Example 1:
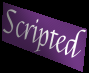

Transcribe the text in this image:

Scripted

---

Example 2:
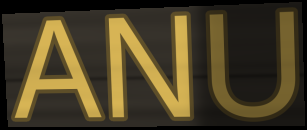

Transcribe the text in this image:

ANU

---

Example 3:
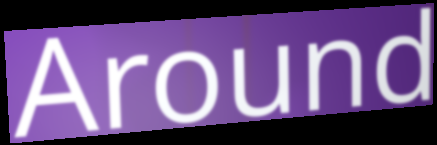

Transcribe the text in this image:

Around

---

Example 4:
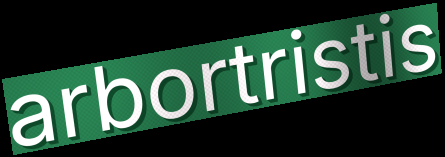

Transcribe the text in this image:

arbortristis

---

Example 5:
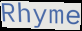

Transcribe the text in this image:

Rhyme